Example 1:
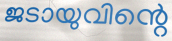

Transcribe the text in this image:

ജടായുവിന്റെ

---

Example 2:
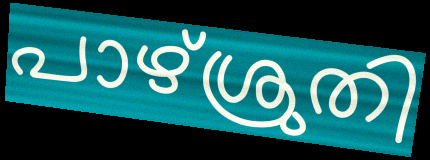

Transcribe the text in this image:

പാഴ്ശ്രുതി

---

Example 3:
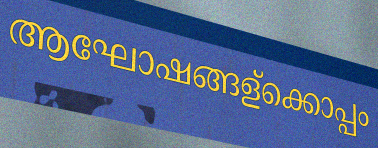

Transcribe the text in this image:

ആഘോഷങ്ങള്ക്കൊപ്പം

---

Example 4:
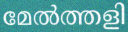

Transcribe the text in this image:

മേൽത്തളി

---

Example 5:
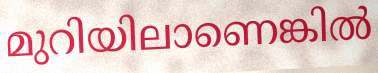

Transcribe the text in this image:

മുറിയിലാണെങ്കിൽ